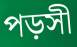
পড়সী